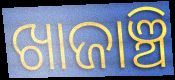
ଖାଜାଞ୍ଚି